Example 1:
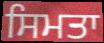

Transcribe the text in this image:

ਸਿਮਤਾ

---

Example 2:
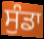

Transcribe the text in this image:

ਸੁੰਡਾ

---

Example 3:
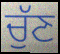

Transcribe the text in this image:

ਚੁੱਣ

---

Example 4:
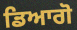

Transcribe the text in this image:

ਡਿਆਗੋ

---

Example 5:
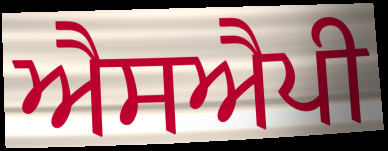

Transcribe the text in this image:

ਐਸਐਪੀ